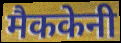
मैककेनी